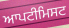
ਆਪਟੀਮਿਸਟ